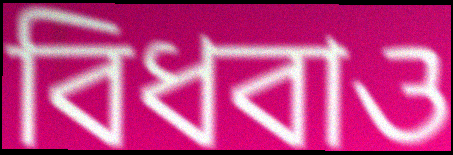
বিধবাও